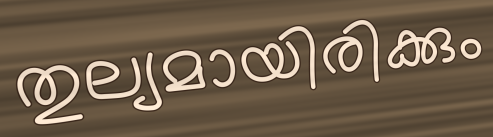
തുല്യമായിരിക്കും